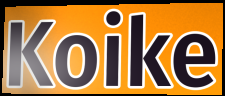
Koike